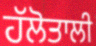
ਹੱਲੋਤਾਲੀ